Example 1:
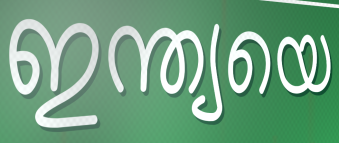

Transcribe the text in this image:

ഇന്ത്യയെ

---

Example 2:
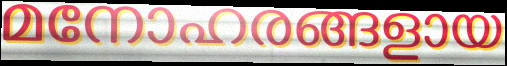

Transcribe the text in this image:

മനോഹരങ്ങളായ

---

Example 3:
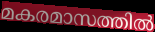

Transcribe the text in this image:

മകരമാസത്തിൽ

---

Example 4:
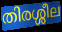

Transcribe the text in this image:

തിരശ്ശീല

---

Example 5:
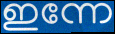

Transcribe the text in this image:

ഇന്നേ